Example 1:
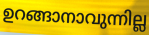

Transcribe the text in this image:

ഉറങ്ങാനാവുന്നില്ല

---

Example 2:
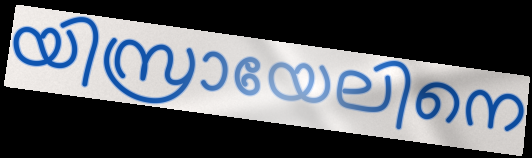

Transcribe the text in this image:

യിസ്രായേലിനെ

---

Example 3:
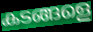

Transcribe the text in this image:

കടങ്ങളെ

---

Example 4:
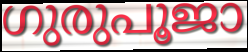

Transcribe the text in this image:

ഗുരുപൂജാ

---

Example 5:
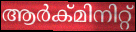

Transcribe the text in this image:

ആർക്മിനിറ്റ്